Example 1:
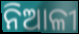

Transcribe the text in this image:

ନିଆଳୀ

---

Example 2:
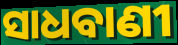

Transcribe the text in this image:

ସାଧବାଣୀ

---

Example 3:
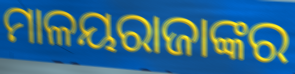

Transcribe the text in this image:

ମାଳୟରାଜାଙ୍କର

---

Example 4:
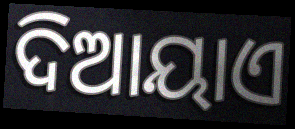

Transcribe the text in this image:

ଦିଆୟାଏ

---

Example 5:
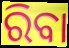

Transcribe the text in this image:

ରିବା